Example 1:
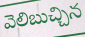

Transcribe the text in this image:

వెలిబుచ్చిన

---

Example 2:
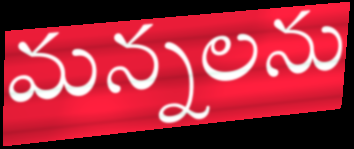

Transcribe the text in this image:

మన్నలను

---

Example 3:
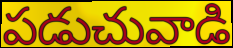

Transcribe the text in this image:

పడుచువాడి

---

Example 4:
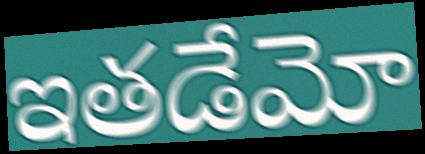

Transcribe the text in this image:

ఇతడేమో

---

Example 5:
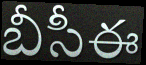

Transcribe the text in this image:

బీసీఈ